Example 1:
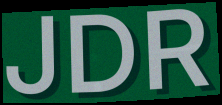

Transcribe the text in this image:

JDR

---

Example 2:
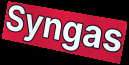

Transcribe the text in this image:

Syngas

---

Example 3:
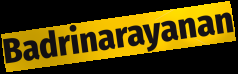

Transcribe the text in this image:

Badrinarayanan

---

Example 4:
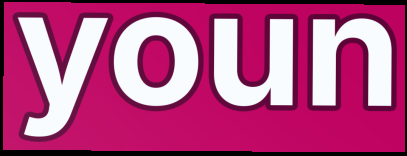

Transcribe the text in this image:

youn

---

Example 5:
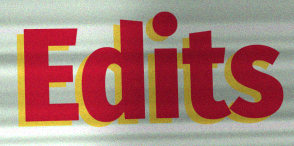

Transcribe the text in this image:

Edits